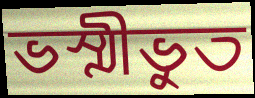
ভস্মীভুত